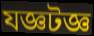
যজ্ঞটজ্ঞ